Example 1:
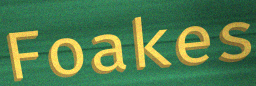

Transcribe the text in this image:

Foakes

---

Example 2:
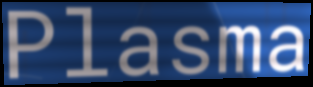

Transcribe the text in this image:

Plasma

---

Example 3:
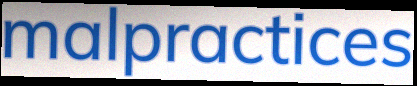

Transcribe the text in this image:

malpractices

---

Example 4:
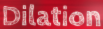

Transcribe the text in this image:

Dilation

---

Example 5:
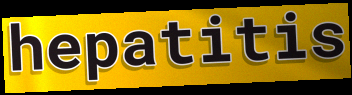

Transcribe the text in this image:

hepatitis